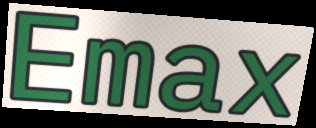
Emax